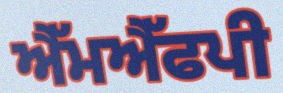
ਐੱਮਐੱਫਪੀ